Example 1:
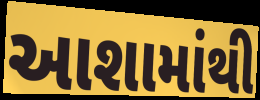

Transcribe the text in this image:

આશામાંથી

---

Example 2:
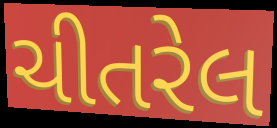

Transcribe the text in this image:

ચીતરેલ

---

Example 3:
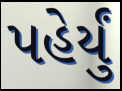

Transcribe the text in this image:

પહેર્યું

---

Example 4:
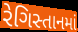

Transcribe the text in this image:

રેગિસ્તાનમાં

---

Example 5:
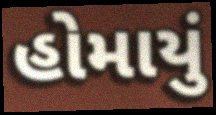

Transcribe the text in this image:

હોમાયું